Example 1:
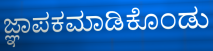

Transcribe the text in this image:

ಜ್ಞಾಪಕಮಾಡಿಕೊಂಡು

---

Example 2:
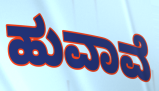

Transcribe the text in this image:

ಹುವಾವೆ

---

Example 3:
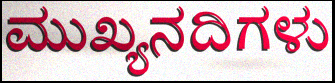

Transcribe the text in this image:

ಮುಖ್ಯನದಿಗಳು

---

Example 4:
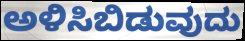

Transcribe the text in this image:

ಅಳಿಸಿಬಿಡುವುದು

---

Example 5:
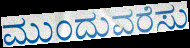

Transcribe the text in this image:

ಮುಂದುವರೆಸು